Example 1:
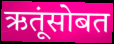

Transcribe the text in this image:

ऋतूंसोबत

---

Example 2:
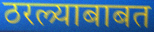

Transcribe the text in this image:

ठरल्याबाबत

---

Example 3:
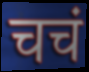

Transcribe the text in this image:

चचं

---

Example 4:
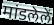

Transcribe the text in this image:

मांडलेलें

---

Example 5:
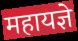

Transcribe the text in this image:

महायज्ञे